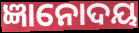
ଜ୍ଞାନୋଦୟ